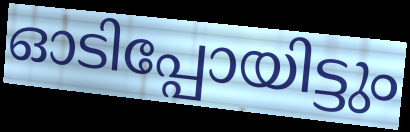
ഓടിപ്പോയിട്ടും